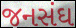
જનસંઘ